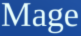
Mage